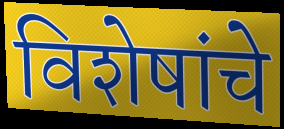
विशेषांचे